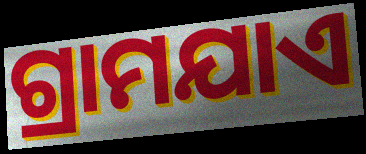
ଗ୍ରାମଯାଏ